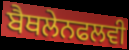
ਬੈਥਲੇਨਫਲਵੀ